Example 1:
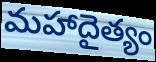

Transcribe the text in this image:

మహాదైత్యం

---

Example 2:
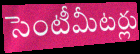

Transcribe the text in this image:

సెంటీమీటర్లు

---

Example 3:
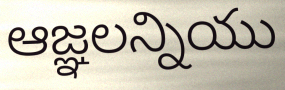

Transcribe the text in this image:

ఆజ్ఞలన్నియు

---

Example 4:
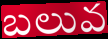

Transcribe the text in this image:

బలువ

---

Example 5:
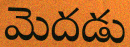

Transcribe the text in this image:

మెదడు